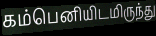
கம்பெனியிடமிருந்து